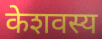
केशवस्य